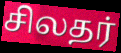
சிலதர்